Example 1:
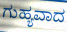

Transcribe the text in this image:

ಗುಹ್ಯವಾದ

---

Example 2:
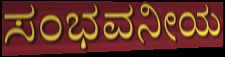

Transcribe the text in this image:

ಸಂಭವನೀಯ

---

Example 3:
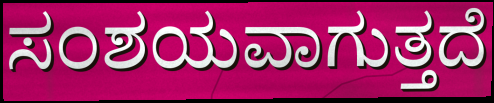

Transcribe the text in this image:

ಸಂಶಯವಾಗುತ್ತದೆ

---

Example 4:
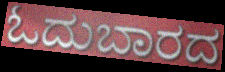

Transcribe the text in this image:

ಓದುಬಾರದ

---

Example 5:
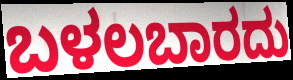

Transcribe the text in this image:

ಬಳಲಬಾರದು